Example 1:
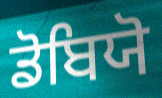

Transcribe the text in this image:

ਡੋਬਿਯੋ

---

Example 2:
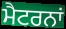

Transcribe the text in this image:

ਮੈਟਰਨਾਂ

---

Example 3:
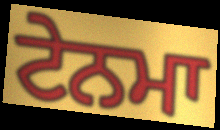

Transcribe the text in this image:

ਟੇਨਮਾ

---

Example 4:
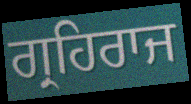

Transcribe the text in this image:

ਗ੍ਰਹਿਰਾਜ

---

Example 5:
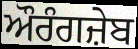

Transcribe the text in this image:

ਔਰੰਗਜ਼ੇਬ